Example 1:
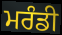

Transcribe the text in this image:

ਮਰੰਡੀ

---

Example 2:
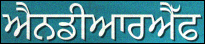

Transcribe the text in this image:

ਐਨਡੀਆਰਐੱਫ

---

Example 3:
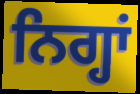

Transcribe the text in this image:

ਨਿਗ੍ਹਾਂ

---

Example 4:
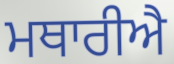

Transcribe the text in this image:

ਮਥਾਰੀਐ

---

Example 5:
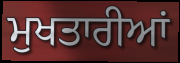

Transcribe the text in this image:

ਮੁਖਤਾਰੀਆਂ